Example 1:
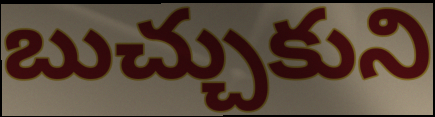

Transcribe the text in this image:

బుచ్చుకుని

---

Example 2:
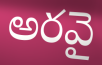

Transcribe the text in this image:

అరవై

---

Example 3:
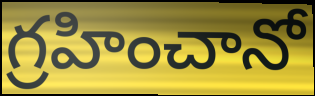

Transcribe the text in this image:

గ్రహించానో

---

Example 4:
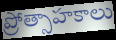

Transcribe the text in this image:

ప్రోత్సాహకాలు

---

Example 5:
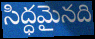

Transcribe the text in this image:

సిద్ధమైనది